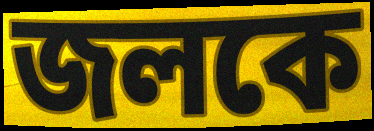
জলকে